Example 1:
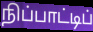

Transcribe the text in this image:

நிப்பாட்டிப்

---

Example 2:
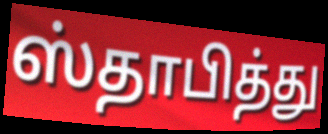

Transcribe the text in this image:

ஸ்தாபித்து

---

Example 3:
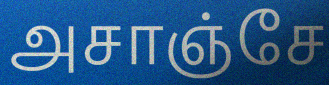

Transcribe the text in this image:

அசாஞ்சே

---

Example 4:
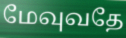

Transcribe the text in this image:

மேவுவதே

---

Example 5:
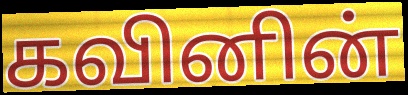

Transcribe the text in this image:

கவினின்